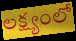
లక్ష్యంలో